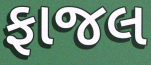
ફાજલ